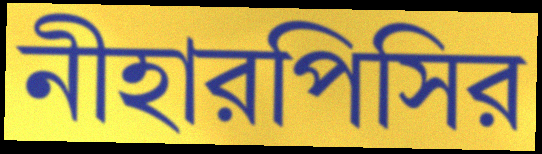
নীহারপিসির